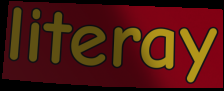
literay